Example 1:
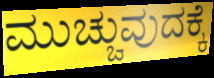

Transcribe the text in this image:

ಮುಚ್ಚುವುದಕ್ಕೆ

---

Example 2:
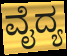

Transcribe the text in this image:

ವೈದ್ಯ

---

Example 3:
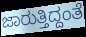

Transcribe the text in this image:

ಜಾರುತ್ತಿದ್ದಂತೆ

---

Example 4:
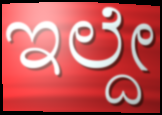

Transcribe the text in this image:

ಇಲ್ದೇ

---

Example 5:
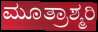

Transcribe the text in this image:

ಮೂತ್ರಾಶ್ಮರಿ